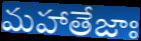
మహాతేజాః